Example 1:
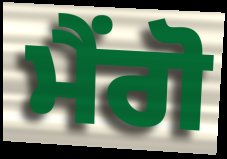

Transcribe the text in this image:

ਮੈਂਗੋ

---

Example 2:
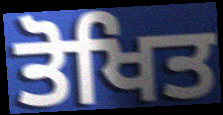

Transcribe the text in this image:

ਤੋਖਿਤ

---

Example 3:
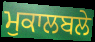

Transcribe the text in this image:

ਮੁਕਾਲਬਲੇ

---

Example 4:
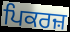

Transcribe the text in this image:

ਪਿਕਰਜ਼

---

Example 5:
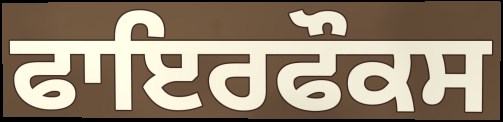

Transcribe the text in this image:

ਫਾਇਰਫੌਕਸ